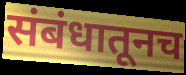
संबंधातूनच